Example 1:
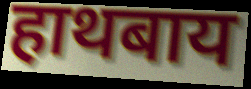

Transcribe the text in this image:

हाथबाय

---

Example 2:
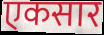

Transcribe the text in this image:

एकसार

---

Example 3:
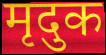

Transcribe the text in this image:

मृदुक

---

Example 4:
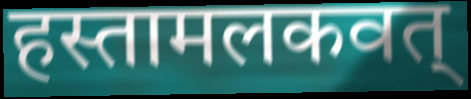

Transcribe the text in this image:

हस्तामलकवत्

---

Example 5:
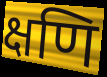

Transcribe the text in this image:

क्षणि